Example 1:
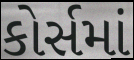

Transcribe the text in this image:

કોર્સમાં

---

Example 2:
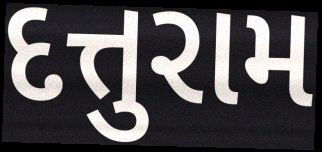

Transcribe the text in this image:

દત્તુરામ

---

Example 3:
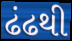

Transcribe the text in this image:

ઢંઢથી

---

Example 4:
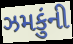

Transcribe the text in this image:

ઝમકુંની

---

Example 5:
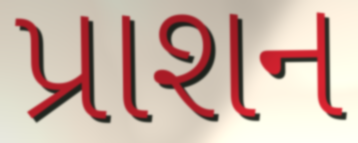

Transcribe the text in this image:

પ્રાશન